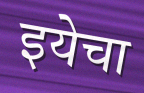
इयेचा